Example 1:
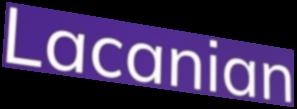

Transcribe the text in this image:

Lacanian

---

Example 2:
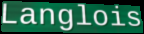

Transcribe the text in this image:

Langlois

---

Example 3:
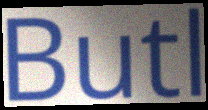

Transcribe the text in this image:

Butl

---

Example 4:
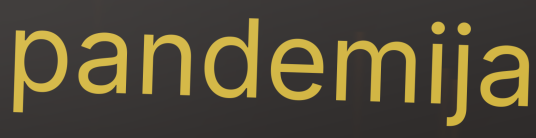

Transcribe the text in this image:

pandemija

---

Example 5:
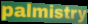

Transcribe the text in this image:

palmistry